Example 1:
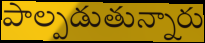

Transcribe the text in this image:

పాల్పడుతున్నారు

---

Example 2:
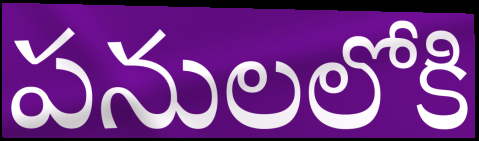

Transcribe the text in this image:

పనులలోకి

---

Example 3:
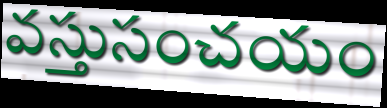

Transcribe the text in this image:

వస్తుసంచయం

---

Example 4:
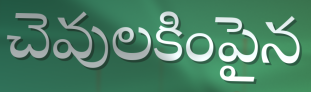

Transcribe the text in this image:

చెవులకింపైన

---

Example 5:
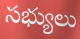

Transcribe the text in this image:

సభ్యులు